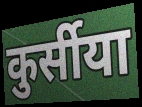
कुर्सीया